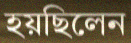
হয়ছিলেন